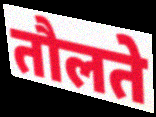
तौलते